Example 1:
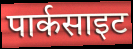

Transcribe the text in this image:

पार्कसाइट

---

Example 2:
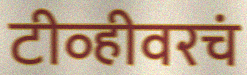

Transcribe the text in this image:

टीव्हीवरचं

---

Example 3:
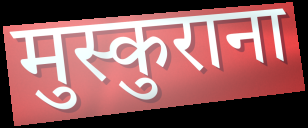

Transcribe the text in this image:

मुस्कुराना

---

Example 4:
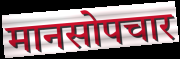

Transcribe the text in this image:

मानसोपचार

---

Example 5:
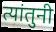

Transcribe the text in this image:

त्यांतुनी